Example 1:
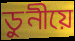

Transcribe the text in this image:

ডুনীয়ে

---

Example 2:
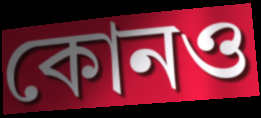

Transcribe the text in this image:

কোনও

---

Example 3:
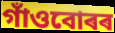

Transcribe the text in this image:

গাঁওবোৰৰ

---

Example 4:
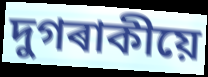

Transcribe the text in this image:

দুগৰাকীয়ে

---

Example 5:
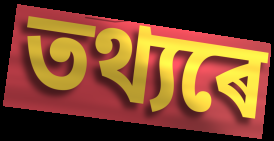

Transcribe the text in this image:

তথ্যৰে